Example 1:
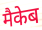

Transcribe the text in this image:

मैकेब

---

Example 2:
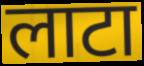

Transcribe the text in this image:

लाटा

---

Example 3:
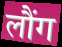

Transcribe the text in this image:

लौंग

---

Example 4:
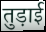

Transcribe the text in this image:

तुड़ाई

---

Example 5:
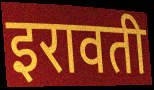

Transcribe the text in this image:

इरावती